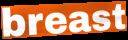
breast